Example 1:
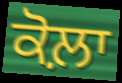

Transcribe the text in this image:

ਕੋਲ਼ਾ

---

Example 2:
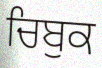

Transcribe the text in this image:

ਚਿਬੁਕ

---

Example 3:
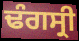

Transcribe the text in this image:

ਢੰਗਸ੍ਰੀ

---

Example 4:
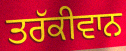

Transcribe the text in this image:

ਤਰੱਕੀਵਾਨ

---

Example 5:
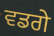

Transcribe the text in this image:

ਵਡਗੇ